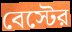
বেস্টের